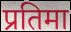
प्रतिमा